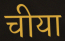
चीया